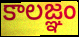
కాలజ్ఞం